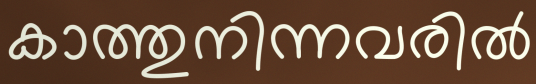
കാത്തുനിന്നവരിൽ